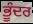
ਭੂੰਦਰ